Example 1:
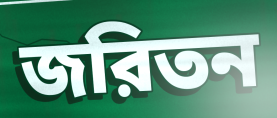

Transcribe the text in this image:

জরিতন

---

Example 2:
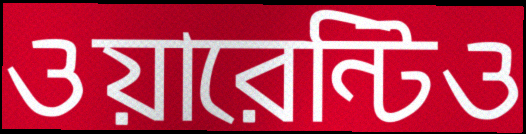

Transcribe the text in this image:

ওয়ারেন্টিও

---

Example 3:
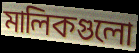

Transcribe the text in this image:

মালিকগুলো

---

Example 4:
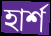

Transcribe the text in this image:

হার্শ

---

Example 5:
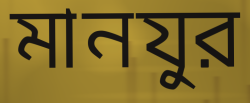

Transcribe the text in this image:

মানযুর